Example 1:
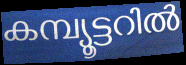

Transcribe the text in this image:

കമ്പ്യൂട്ടറിൽ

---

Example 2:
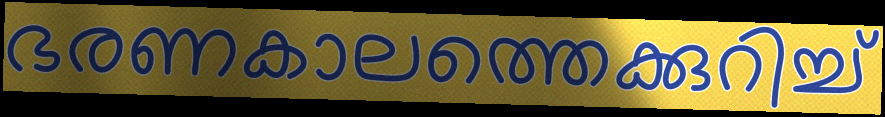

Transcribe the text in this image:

ഭരണകാലത്തെക്കുറിച്ച്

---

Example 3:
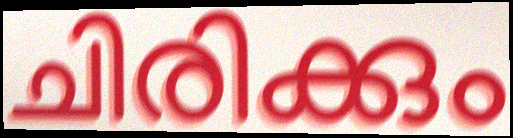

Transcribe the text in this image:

ചിരിക്കും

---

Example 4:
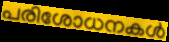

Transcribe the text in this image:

പരിശോധനകൾ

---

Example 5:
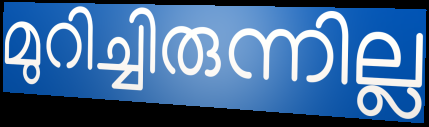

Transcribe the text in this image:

മുറിച്ചിരുന്നില്ല